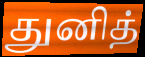
துனித்